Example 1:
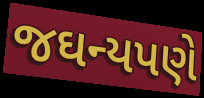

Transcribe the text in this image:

જઘન્યપણે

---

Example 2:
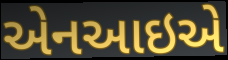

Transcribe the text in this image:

એનઆઇએ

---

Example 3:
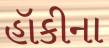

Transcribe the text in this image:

હૉકીના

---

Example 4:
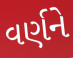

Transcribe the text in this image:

વર્ણને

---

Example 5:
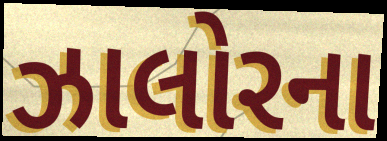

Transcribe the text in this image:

ઝાલોરના